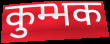
कुम्भक